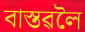
বাস্তৱলৈ